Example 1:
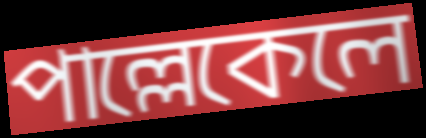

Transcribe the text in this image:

পাল্লেকেলে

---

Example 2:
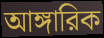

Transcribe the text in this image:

আঙ্গারিক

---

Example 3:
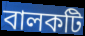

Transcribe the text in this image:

বালকটি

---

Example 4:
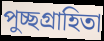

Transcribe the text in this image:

পুচ্ছগ্রাহিতা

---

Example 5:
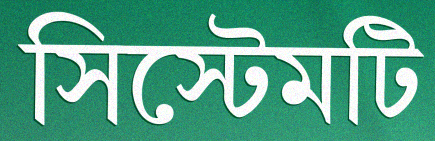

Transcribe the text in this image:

সিস্টেমটি